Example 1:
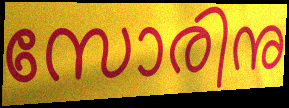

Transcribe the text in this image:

സോരിനു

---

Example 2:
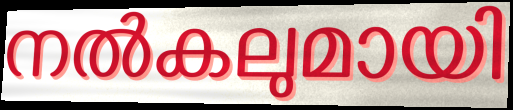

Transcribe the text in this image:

നൽകലുമായി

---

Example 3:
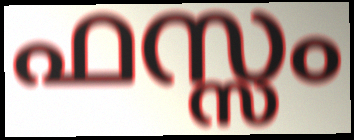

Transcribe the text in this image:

ഫസ്സം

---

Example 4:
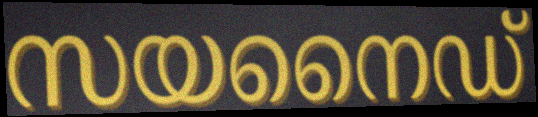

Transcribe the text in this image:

സയനൈഡ്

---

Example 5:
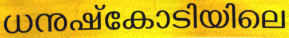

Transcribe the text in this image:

ധനുഷ്‌കോടിയിലെ